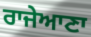
ਰਾਜੇਆਣਾ